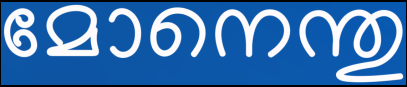
മോനെന്തു